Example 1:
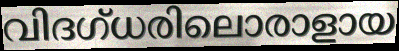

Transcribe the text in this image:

വിദഗ്ധരിലൊരാളായ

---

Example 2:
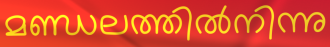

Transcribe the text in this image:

മണ്ഡലത്തിൽനിന്നു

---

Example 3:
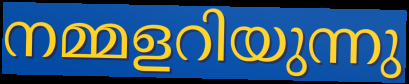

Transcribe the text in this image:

നമ്മളറിയുന്നു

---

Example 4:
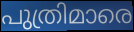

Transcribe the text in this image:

പുത്രിമാരെ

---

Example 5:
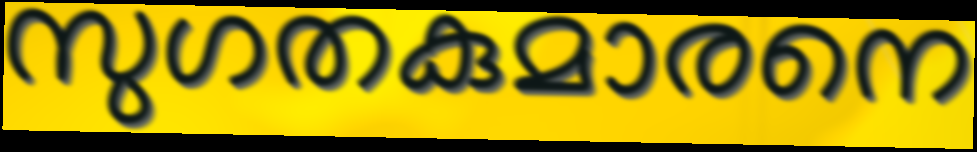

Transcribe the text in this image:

സുഗതകുമാരനെ